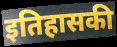
इतिहासकी